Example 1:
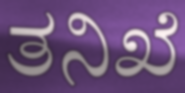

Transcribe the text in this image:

ತನಿಖೆ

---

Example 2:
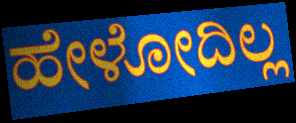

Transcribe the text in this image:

ಹೇಳೋದಿಲ್ಲ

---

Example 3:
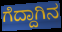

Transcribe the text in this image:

ಗೆದ್ದಾಗಿನ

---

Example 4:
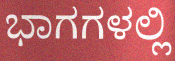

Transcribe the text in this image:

ಭಾಗಗಳಲ್ಲಿ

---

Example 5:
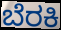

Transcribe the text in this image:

ಬೆರಕಿ